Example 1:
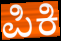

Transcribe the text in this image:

ಪಿಕಿ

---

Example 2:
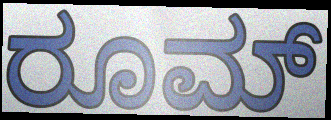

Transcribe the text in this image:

ರೂಮ್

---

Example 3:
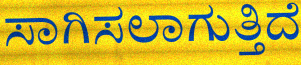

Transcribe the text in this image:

ಸಾಗಿಸಲಾಗುತ್ತಿದೆ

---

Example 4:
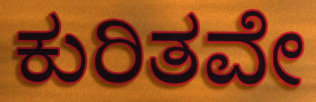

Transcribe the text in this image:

ಕುರಿತವೇ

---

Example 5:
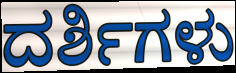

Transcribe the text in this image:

ದರ್ಶಿಗಳು